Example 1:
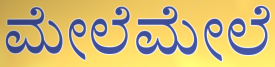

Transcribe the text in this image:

ಮೇಲೆಮೇಲೆ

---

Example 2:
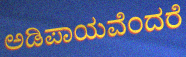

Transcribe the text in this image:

ಅಡಿಪಾಯವೆಂದರೆ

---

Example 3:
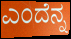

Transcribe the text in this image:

ಎಂದೆನ್ನ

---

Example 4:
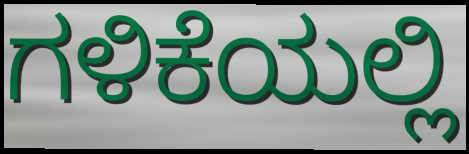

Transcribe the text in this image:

ಗಳಿಕೆಯಲ್ಲಿ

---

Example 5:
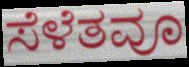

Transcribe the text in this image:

ಸೆಳೆತವೂ